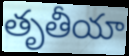
తృతీయా